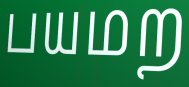
பயமற